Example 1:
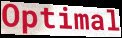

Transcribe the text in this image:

Optimal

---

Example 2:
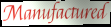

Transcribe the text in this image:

Manufactured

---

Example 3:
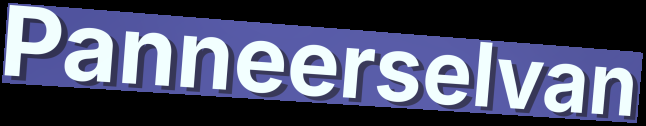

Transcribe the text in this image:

Panneerselvan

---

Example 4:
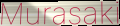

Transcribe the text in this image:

Murasaki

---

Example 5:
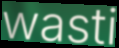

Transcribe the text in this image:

wasti